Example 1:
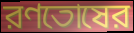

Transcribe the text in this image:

রণতোষের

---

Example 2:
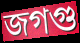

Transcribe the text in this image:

জগগু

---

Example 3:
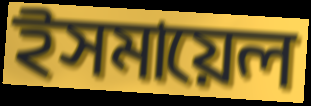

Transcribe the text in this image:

ইসমায়েল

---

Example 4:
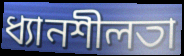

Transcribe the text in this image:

ধ্যানশীলতা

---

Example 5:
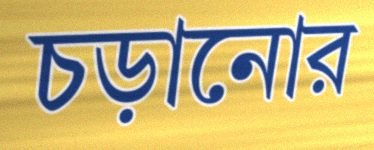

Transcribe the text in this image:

চড়ানোর